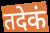
तदेकं